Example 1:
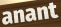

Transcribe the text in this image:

anant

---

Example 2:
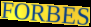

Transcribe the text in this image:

FORBES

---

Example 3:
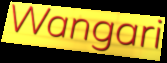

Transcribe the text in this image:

Wangari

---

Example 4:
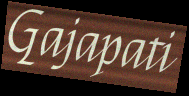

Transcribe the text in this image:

Gajapati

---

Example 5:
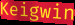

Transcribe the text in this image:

Keigwin